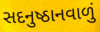
સદનુષ્ઠાનવાળું